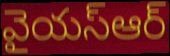
వైయస్ఆర్